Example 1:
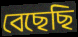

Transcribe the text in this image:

বেছেছি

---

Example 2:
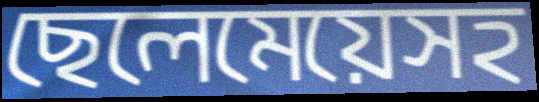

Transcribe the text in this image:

ছেলেমেয়েসহ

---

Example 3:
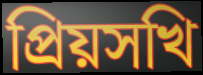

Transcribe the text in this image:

প্রিয়সখি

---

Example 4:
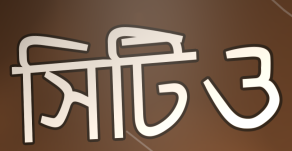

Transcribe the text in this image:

সিটিও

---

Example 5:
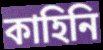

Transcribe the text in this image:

কাহিনি